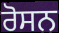
ਰੋਸਨ